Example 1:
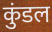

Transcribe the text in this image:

कुंडल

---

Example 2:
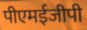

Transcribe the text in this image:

पीएमईजीपी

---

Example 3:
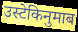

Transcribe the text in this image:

उस्टेकिनुमाब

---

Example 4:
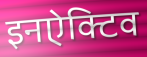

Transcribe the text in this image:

इनऐक्टिव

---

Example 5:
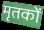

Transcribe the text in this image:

मृतकों